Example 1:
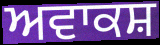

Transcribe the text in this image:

ਅਵਾਕਸ਼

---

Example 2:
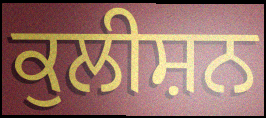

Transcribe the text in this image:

ਕੁਲੀਸ਼ਨ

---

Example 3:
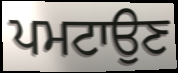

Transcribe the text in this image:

ਪਮਟਾਉਣ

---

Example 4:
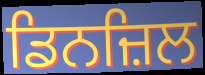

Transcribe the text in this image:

ਡਿਨਜ਼ਿਲ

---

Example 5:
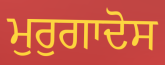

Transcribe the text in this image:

ਮੁਰੁਗਾਦੋਸ